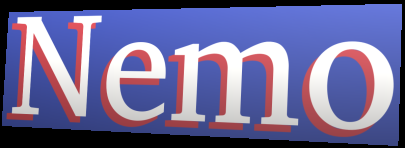
Nemo